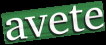
avete